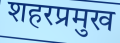
शहरप्रमुख